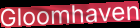
Gloomhaven